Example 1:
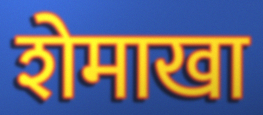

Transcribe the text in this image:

शेमाखा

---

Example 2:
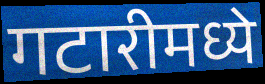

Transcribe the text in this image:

गटारीमध्ये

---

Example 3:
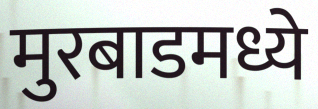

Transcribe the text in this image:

मुरबाडमध्ये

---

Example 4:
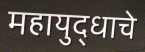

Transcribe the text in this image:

महायुद्धाचे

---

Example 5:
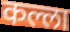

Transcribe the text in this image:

कल्ला